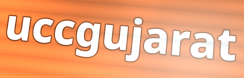
uccgujarat